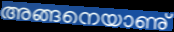
അങ്ങനെയാണു്